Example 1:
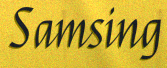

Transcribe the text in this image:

Samsing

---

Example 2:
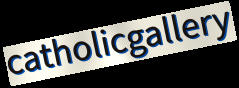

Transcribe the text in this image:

catholicgallery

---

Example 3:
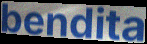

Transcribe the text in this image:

bendita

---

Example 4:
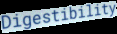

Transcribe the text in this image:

Digestibility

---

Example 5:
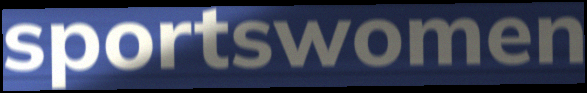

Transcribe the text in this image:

sportswomen